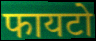
फायटो